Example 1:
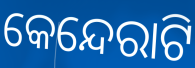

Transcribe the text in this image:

କେନ୍ଦେରାଟି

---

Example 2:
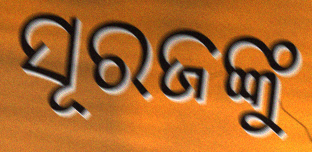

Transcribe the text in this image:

ସୂରଜଙ୍କୁ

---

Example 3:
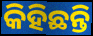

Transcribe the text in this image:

କିହିଛନ୍ତି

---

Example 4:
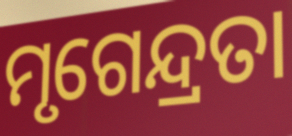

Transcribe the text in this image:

ମୃଗେନ୍ଦ୍ରତା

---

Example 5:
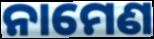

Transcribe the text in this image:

ନାମେଣ